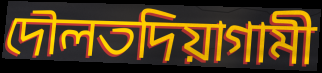
দৌলতদিয়াগামী